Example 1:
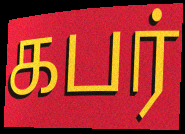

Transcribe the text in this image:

கபர்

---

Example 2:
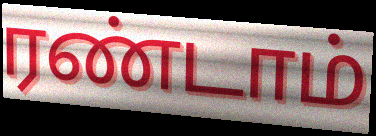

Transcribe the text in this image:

ரண்டாம்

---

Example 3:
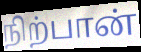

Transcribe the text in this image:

நிற்பான்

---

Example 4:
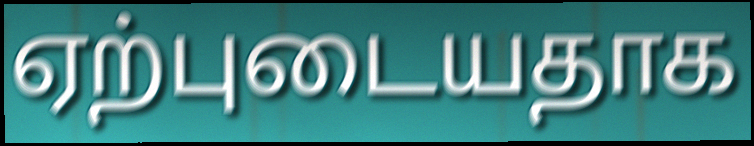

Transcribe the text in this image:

ஏற்புடையதாக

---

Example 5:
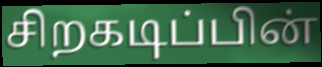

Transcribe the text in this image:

சிறகடிப்பின்